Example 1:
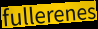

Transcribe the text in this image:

fullerenes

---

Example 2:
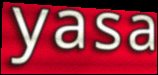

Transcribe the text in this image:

yasa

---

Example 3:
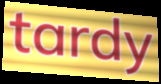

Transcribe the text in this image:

tardy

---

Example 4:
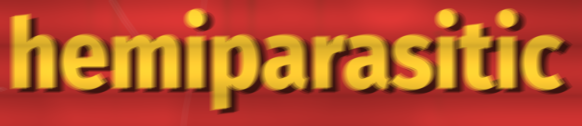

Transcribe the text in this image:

hemiparasitic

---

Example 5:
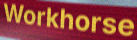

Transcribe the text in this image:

Workhorse